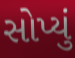
સોપ્યું